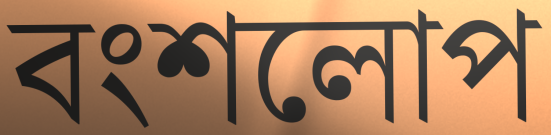
বংশলোপ